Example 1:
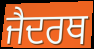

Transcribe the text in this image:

ਜੈਦਰਥ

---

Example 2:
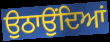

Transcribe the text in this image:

ਉਠਾਉਂਦਿਆਂ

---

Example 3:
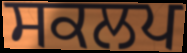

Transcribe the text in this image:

ਸਕਲਪ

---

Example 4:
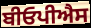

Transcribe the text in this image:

ਬੀਓਪੀਐਸ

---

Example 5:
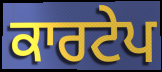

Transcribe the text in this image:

ਕਾਰਟੇਪ